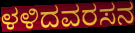
ಳಳಿದವರಸನ